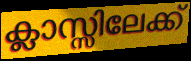
ക്ലാസ്സിലേക്ക്